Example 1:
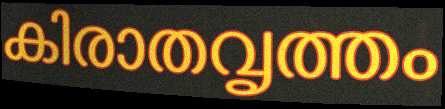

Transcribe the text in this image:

കിരാതവൃത്തം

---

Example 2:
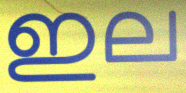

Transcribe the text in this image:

ഇല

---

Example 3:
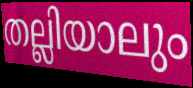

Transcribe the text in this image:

തല്ലിയാലും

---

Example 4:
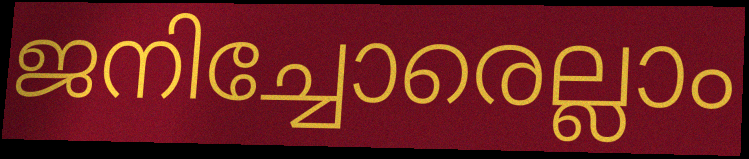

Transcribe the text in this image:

ജനിച്ചോരെല്ലാം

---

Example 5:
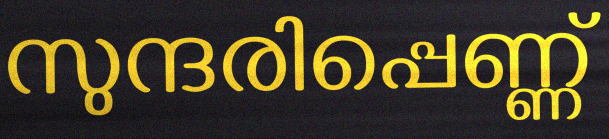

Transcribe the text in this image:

സുന്ദരിപ്പെണ്ണ്